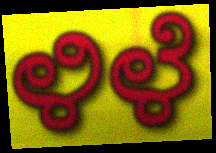
ಳಿಳೆ